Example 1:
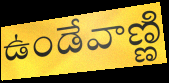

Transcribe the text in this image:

ఉండేవాణ్ణి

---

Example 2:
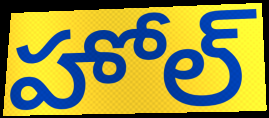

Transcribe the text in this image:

హోల్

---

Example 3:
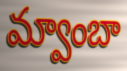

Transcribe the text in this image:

మ్వాంబా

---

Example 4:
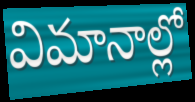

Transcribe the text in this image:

విమానాల్లో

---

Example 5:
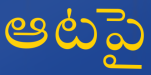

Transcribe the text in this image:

ఆటపై